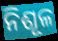
ନିଶୂଳ